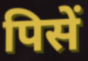
पिसें